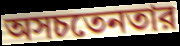
অসচতেনতার